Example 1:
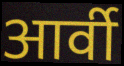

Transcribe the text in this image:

आर्वी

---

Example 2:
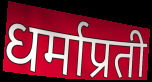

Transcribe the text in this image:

धर्माप्रती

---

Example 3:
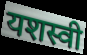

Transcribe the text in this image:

यशस्वी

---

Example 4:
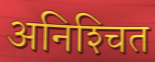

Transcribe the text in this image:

अनिश्चित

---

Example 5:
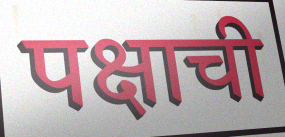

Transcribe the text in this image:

पक्षाची